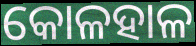
କୋଳହାଳ